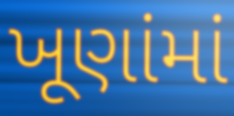
ખૂણાંમાં